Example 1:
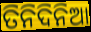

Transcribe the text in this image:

ତିନିଦିନିଆ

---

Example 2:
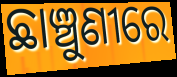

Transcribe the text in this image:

ଛାଞ୍ଚୁଣୀରେ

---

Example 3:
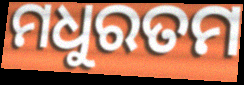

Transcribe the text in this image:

ମଧୁରତମ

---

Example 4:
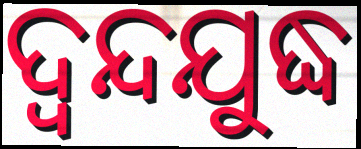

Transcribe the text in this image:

ଦ୍ୱନ୍ଦଯୁଦ୍ଧ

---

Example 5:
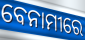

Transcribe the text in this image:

ବେନାମୀରେ